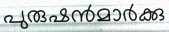
പുരുഷൻമാർക്കു